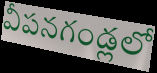
వీపనగండ్లలో